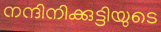
നന്ദിനിക്കുട്ടിയുടെ